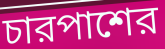
চারপাশের